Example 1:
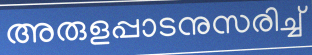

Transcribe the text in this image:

അരുളപ്പാടനുസരിച്ച്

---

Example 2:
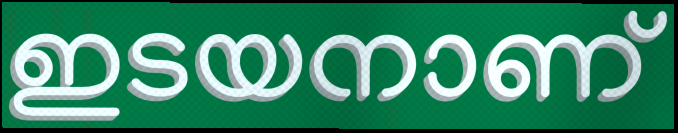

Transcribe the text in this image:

ഇടയനാണ്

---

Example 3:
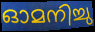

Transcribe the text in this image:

ഓമനിച്ചു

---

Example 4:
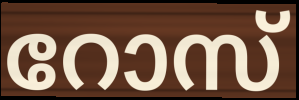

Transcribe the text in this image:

റോസ്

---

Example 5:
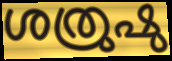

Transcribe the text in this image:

ശത്രുഷു